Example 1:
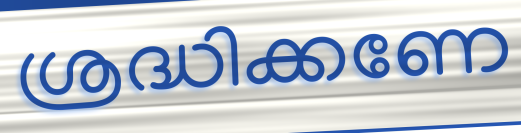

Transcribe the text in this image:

ശ്രദ്ധിക്കണേ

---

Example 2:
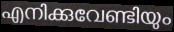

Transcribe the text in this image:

എനിക്കുവേണ്ടിയും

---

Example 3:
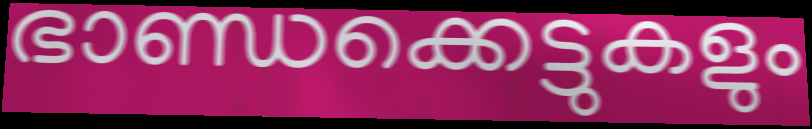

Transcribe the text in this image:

ഭാണ്ഡക്കെട്ടുകളും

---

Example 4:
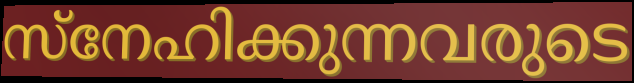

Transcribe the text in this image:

സ്നേഹിക്കുന്നവരുടെ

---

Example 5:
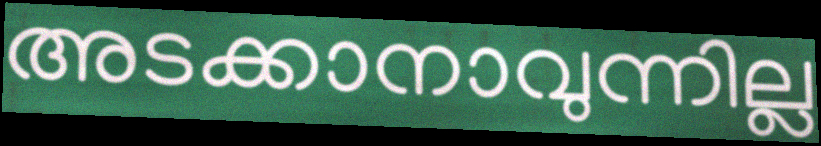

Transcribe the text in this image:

അടക്കാനാവുന്നില്ല